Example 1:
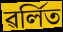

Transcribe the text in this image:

ৱৰ্লিত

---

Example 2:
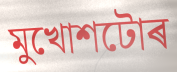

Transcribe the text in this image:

মুখোশটোৰ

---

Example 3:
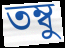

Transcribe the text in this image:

তম্বু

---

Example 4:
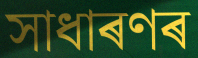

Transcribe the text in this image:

সাধাৰণৰ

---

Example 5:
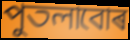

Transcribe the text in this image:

পুতলাবোৰ